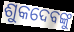
ଶୁକଦେବଙ୍କୁ